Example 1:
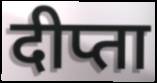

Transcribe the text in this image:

दीप्ता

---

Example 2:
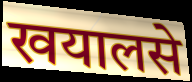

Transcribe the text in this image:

खयालसे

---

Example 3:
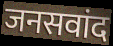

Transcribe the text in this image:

जनसवांद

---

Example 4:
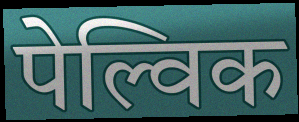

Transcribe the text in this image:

पेल्विक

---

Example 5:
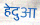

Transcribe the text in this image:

हेदुआ